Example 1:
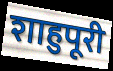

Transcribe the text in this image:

शाहुपूरी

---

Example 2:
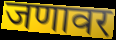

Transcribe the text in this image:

जणावर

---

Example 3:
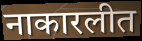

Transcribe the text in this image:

नाकारलीत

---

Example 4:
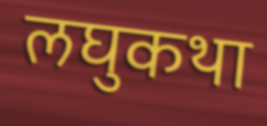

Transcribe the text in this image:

लघुकथा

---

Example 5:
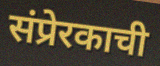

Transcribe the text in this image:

संप्रेरकाची